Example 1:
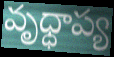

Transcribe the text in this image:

వృధ్ధాప్య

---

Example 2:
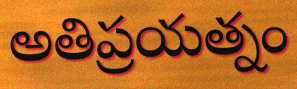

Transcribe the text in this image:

అతిప్రయత్నం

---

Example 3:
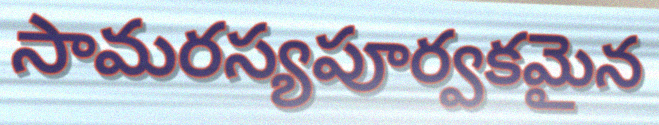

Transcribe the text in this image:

సామరస్యపూర్వకమైన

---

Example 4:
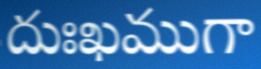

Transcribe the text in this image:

దుఃఖముగా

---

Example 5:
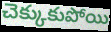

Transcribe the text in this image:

చెక్కుకుపోయి